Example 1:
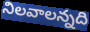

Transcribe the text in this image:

నిలవాలన్నది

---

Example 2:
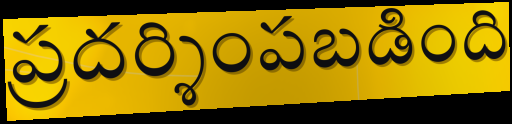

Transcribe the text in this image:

ప్రదర్శింపబడింది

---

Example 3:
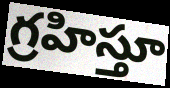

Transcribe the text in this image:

గ్రహిస్తూ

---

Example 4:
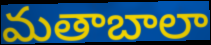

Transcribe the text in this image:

మతాబాలా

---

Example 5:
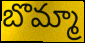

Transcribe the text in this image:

బొమ్మా